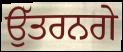
ਉੱਤਰਨਗੇ